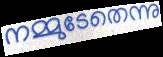
നമ്മുടേതെന്നു